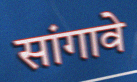
सांगावे